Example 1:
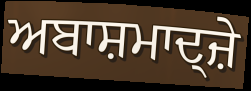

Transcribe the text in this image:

ਅਬਾਸ਼ਮਾਦ੍ਜ਼ੇ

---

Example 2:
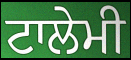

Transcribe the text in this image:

ਟਾਲੇਮੀ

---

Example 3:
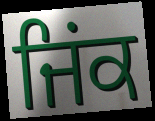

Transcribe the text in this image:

ਜਿਂਕ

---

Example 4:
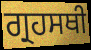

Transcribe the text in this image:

ਗ੍ਰਹਸਥੀ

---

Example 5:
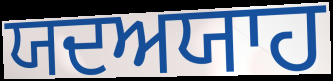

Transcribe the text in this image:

ਯਦਅਯਾਹ